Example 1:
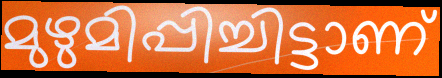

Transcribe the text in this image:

മുഴുമിപ്പിച്ചിട്ടാണ്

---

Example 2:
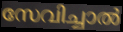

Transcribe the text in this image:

സേവിച്ചാൽ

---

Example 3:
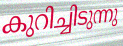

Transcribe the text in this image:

കുറിച്ചിടുന്നു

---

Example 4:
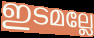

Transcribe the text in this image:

ഇടമല്ലേ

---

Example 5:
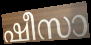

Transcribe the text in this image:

ഷീസാ